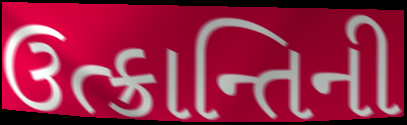
ઉત્ક્રાન્તિની